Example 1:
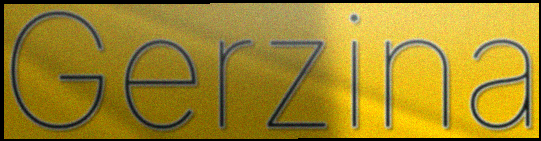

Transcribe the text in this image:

Gerzina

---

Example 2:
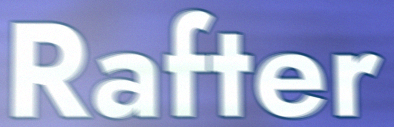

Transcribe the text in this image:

Rafter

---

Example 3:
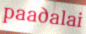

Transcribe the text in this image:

paadalai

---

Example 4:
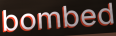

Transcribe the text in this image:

bombed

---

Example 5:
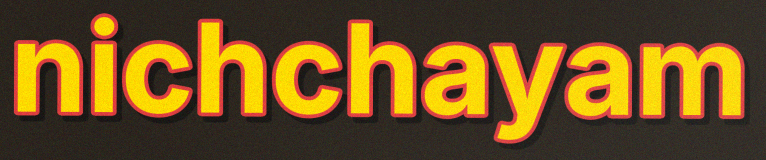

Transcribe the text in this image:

nichchayam